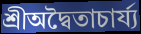
শ্রীঅদ্বৈতাচার্য্য